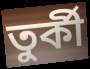
তুর্কী